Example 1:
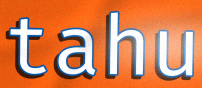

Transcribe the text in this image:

tahu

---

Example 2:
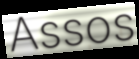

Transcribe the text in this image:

Assos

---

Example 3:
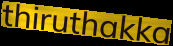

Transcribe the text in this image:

thiruthakka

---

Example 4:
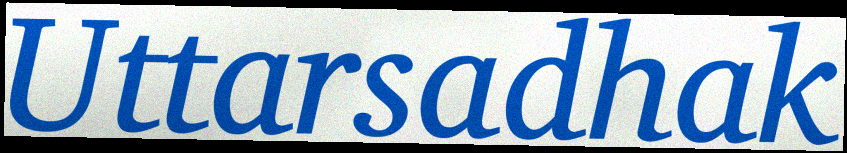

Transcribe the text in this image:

Uttarsadhak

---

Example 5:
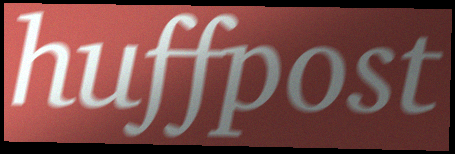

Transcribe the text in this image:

huffpost